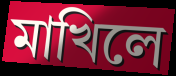
মাখিলে